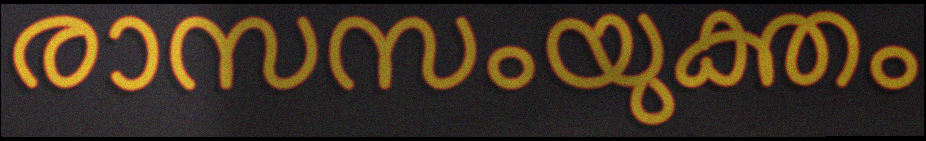
രാസസംയുക്തം